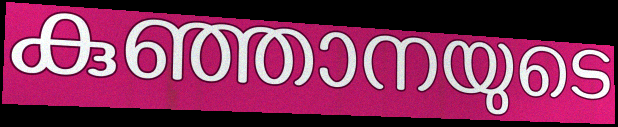
കുഞ്ഞാനയുടെ